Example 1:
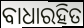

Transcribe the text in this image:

ବାଧାରହିତ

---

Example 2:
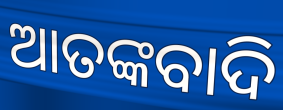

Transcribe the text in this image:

ଆତଙ୍କବାଦି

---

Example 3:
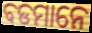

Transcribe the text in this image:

ବଡମାନେ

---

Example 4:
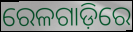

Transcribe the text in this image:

ରେଳଗାଡ଼ିରେ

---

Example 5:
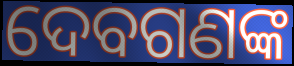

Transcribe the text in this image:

ଦେବଗଣଙ୍କ